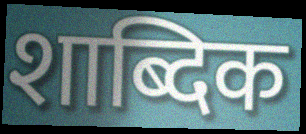
शाब्दिक